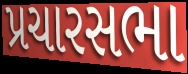
પ્રચારસભા